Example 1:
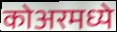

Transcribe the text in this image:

कोअरमध्ये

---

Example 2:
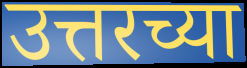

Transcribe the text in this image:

उत्तरच्या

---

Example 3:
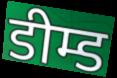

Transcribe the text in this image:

डीम्ड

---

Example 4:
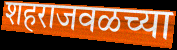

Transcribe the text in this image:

शहराजवळच्या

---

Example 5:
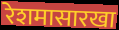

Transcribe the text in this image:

रेशमासारखा